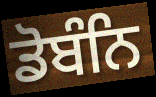
ਡੋਬੰਨਿ